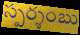
స్పర్శంబు